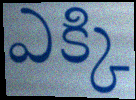
ఎక్కి